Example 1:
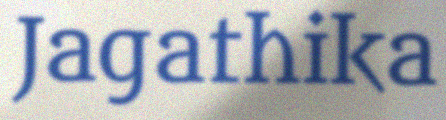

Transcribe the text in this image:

Jagathika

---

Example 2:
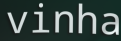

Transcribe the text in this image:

vinha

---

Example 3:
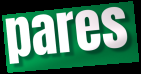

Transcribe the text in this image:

pares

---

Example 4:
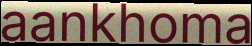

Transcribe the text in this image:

aankhoma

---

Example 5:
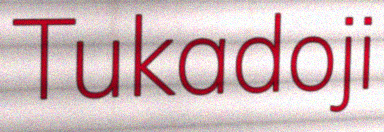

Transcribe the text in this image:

Tukadoji